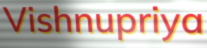
Vishnupriya